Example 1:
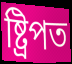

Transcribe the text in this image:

ষ্ট্ৰিপত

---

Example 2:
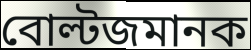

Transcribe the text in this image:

বোল্টজমানক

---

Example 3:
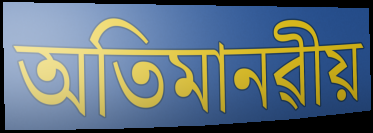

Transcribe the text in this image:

অতিমানৱীয়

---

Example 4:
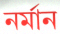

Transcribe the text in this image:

নৰ্মান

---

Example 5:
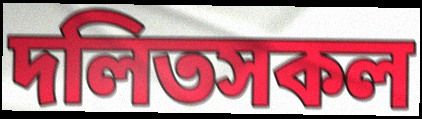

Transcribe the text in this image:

দলিতসকল